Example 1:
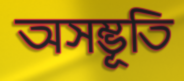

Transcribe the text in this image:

অসম্ভূতি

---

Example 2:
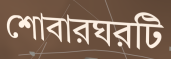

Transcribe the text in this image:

শোবারঘরটি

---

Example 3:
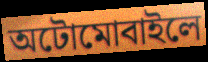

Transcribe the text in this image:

অটোমোবাইলে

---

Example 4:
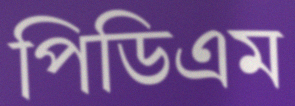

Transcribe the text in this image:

পিডিএম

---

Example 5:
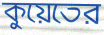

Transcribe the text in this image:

কুয়েতের